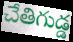
చేతిగుడ్డ